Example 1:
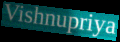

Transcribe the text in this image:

Vishnupriya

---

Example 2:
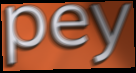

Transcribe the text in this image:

pey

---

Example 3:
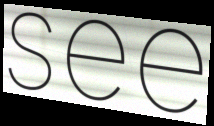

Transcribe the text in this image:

see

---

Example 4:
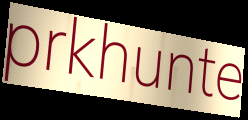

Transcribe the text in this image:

prkhunte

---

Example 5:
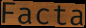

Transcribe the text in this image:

Facta